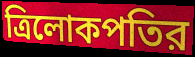
ত্রিলোকপতির